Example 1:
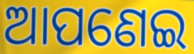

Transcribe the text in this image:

ଆପଣେଇ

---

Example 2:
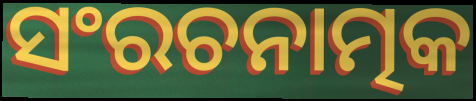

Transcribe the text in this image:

ସଂରଚନାତ୍ମକ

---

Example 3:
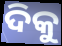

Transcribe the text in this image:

ଦିକୁ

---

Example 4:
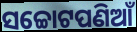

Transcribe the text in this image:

ସଚ୍ଚୋଟପଣିଆଁ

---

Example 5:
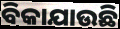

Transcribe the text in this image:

ବିକାଯାଉଛି